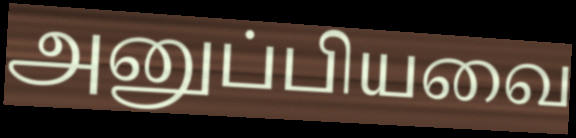
அனுப்பியவை